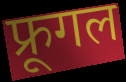
फ्रूगल